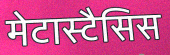
मेटास्टैसिस